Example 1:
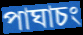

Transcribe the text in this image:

পাঘাচং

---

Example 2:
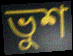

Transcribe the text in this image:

ভুশ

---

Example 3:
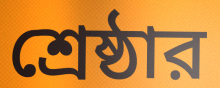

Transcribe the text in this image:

শ্রেষ্ঠার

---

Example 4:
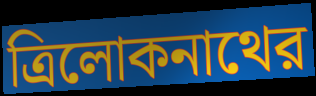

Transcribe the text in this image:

ত্রিলোকনাথের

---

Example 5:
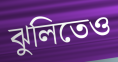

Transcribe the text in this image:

ঝুলিতেও